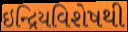
ઇન્દ્રિયવિશેષથી